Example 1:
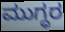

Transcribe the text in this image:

ಮುಗ್ಧರ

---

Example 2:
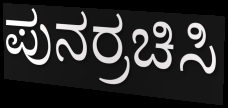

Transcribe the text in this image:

ಪುನರ್ರಚಿಸಿ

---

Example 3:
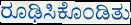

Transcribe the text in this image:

ರೂಢಿಸಿಕೊಂಡಿತು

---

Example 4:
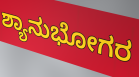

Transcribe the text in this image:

ಶ್ಯಾನುಭೋಗರ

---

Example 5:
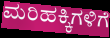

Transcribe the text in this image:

ಮರಿಹಕ್ಕಿಗಳಿಗೆ